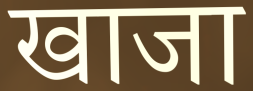
खाजा